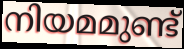
നിയമമുണ്ട്